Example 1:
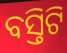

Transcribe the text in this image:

ବସ୍ତିଟି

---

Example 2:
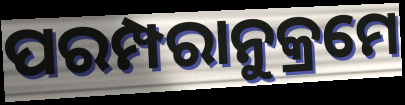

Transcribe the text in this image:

ପରମ୍ପରାନୁକ୍ରମେ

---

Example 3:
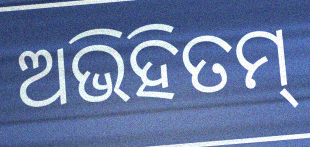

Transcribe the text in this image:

ଅଭିହିତମ୍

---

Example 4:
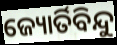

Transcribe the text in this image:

ଜ୍ୟୋର୍ତିବିନ୍ଦୁ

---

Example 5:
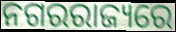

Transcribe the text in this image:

ନଗରରାଜ୍ୟରେ